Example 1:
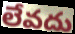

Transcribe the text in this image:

లేవదు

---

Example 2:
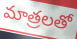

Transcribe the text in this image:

మాత్రలతో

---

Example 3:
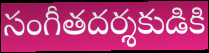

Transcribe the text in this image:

సంగీతదర్శకుడికి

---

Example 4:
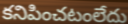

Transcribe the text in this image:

కనిపించటంలేదు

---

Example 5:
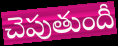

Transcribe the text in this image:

చెపుతుందీ